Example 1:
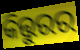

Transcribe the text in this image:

କିତ୍ତୁରର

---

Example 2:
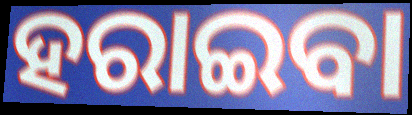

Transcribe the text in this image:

ହରାଇବା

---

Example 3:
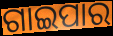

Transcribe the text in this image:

ଗାଇପାର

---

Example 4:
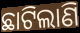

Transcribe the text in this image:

ଛାଟିଲାଣି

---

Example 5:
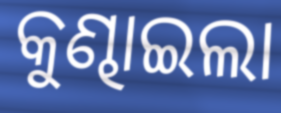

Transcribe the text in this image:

କୁଣ୍ଢାଇଲା